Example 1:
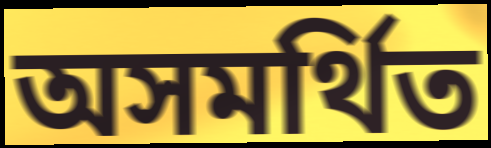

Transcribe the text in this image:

অসমর্থিত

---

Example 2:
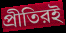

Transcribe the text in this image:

প্রীতিরই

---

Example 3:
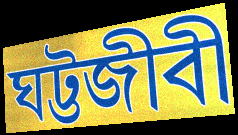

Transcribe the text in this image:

ঘট্টজীবী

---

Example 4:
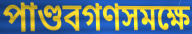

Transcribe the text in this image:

পাণ্ডবগণসমক্ষে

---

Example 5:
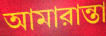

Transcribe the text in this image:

আমারান্তা